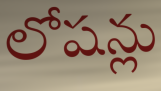
లోషన్లు